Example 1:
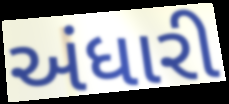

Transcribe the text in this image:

અંધારી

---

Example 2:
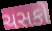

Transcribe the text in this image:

ચસકો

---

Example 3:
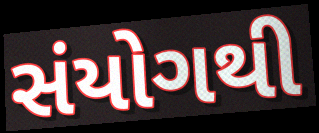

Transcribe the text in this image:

સંયોગથી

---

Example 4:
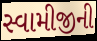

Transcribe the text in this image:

સ્વામીજીની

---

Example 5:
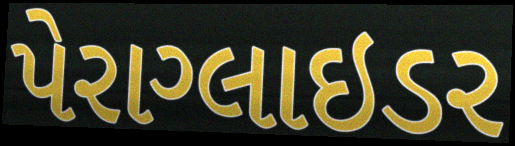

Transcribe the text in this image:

પેરાગ્લાઇડર